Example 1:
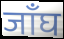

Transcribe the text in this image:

जाँघ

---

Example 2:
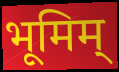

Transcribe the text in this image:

भूमिम्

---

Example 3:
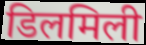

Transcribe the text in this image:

डिलमिली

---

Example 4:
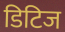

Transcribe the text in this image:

डिटिज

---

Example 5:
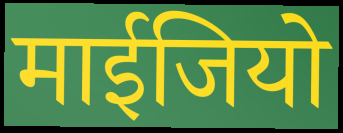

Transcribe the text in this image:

माईजियो